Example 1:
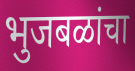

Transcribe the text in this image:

भुजबळांचा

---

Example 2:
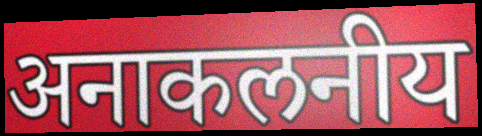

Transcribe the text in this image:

अनाकलनीय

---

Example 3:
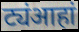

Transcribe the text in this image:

ट्यंआहां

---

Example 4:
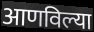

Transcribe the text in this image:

आणविल्या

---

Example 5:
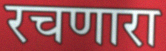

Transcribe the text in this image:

रचणारा